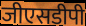
जीएसडीपी